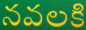
నవలకి